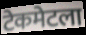
टेकमेटला